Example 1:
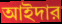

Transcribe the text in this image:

আইদার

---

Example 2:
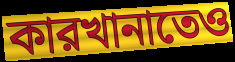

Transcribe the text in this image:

কারখানাতেও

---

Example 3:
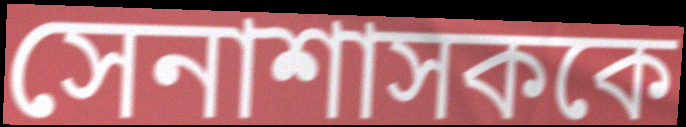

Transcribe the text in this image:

সেনাশাসককে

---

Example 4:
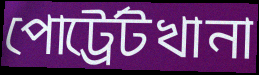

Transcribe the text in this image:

পোর্ট্রেটখানা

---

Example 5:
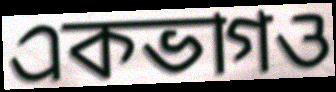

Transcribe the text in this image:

একভাগও